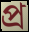
প্ৰ